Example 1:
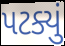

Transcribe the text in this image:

પટક્યું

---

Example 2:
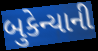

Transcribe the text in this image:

બુકેન્યાની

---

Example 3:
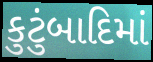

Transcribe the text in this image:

કુટુંબાદિમાં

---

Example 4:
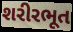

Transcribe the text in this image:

શરીરભૂત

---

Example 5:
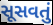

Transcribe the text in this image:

સૂસવતું